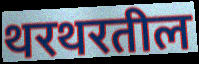
थरथरतील